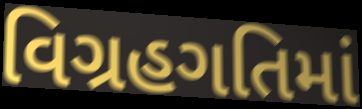
વિગ્રહગતિમાં